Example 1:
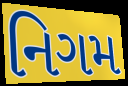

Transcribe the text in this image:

નિગમ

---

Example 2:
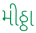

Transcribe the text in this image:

મીઠ્ઠા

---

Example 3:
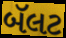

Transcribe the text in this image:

બૅલટ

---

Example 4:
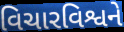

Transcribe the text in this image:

વિચારવિશ્વને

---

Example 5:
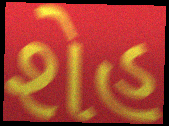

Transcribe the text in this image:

શેહ